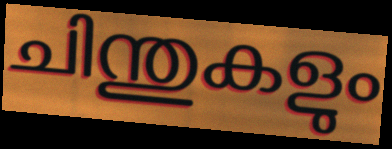
ചിന്തുകളും